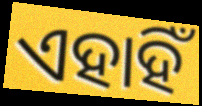
ଏହାହିଁ